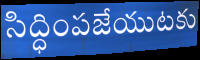
సిద్ధింపజేయుటకు